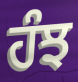
ਹੰਝ